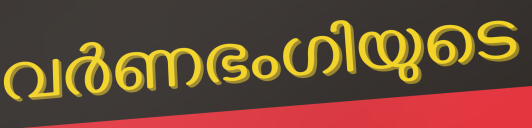
വർണഭംഗിയുടെ